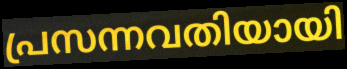
പ്രസന്നവതിയായി